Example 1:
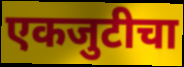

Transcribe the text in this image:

एकजुटीचा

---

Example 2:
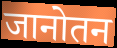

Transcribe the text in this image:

जानोतन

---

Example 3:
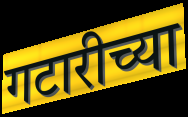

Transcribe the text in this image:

गटारीच्या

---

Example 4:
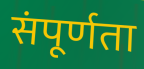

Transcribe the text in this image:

संपूर्णता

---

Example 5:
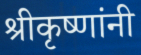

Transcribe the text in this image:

श्रीकृष्णांनी